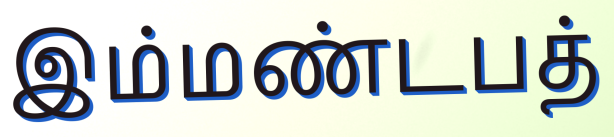
இம்மண்டபத்